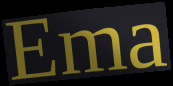
Ema